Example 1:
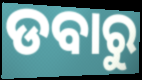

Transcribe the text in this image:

ଡବାରୁ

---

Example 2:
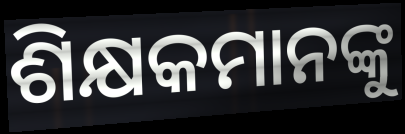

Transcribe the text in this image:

ଶିକ୍ଷକମାନଙ୍କୁ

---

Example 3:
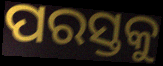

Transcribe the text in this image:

ପରସ୍ତକୁ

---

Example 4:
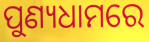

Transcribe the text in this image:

ପୁଣ୍ୟଧାମରେ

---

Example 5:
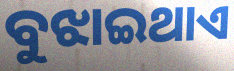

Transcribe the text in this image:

ବୁଝାଇଥାଏ